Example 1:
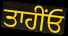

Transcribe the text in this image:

ਤਾਹੀਂਓ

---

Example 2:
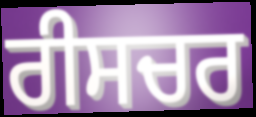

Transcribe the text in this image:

ਰੀਸਚਰ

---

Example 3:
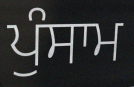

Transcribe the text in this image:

ਪੁੰਸਾਮ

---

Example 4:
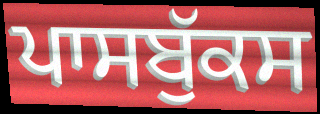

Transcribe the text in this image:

ਪਾਸਬੁੱਕਸ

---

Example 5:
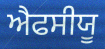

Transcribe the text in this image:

ਐਫਸੀਯੂ